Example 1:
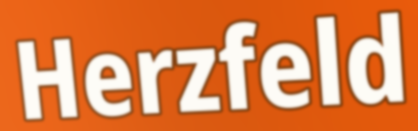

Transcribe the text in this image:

Herzfeld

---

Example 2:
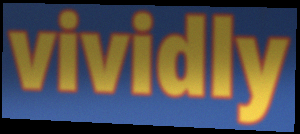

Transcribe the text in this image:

vividly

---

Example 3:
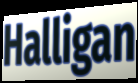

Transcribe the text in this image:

Halligan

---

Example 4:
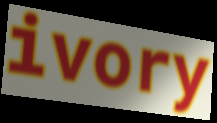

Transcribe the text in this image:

ivory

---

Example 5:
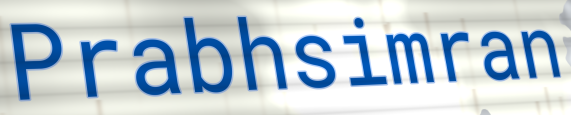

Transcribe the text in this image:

Prabhsimran